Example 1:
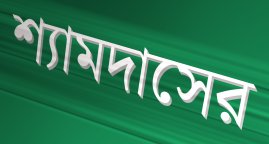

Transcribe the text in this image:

শ্যামদাসের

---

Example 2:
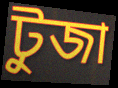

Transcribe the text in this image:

টুজা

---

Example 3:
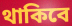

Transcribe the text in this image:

থাকিবে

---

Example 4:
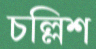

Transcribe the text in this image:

চল্লিশ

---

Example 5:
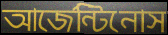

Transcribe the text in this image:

আর্জেন্টিনোস